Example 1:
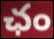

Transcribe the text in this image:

ఛం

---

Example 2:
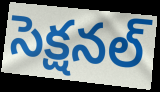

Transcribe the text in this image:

సెక్షనల్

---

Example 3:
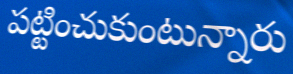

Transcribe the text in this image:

పట్టించుకుంటున్నారు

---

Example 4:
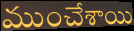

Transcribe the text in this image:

ముంచేశాయి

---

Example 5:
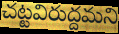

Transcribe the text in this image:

చట్టవిరుద్దమని